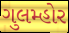
ગુલમ્હોર